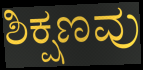
ಶಿಕ್ಷಣವು